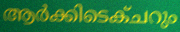
ആർക്കിടെക്ചറും